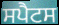
ਸਪੈਟਸ